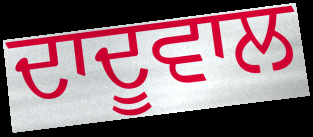
ਦਾਦੂਵਾਲ